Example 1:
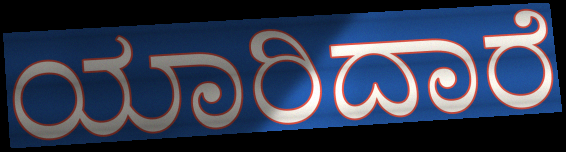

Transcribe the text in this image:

ಯಾರಿದಾರೆ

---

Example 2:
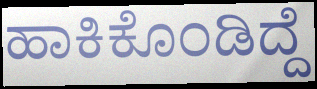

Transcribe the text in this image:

ಹಾಕಿಕೊಂಡಿದ್ದೆ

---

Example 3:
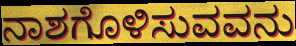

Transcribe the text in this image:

ನಾಶಗೊಳಿಸುವವನು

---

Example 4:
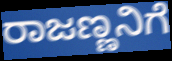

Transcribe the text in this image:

ರಾಜಣ್ಣನಿಗೆ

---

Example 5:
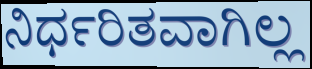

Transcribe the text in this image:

ನಿರ್ಧರಿತವಾಗಿಲ್ಲ